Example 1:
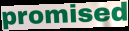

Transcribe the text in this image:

promised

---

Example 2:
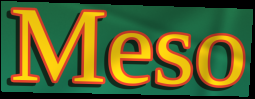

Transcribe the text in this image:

Meso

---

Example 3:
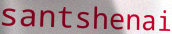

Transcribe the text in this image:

santshenai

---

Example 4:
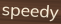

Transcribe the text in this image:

speedy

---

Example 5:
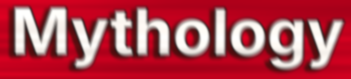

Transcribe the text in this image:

Mythology